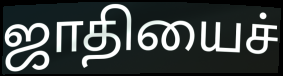
ஜாதியைச்